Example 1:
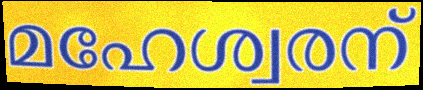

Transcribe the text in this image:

മഹേശ്വരന്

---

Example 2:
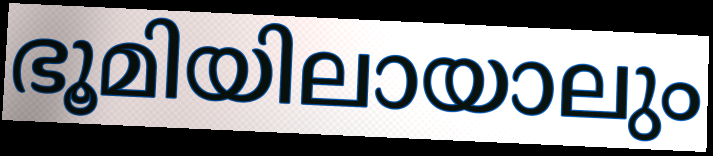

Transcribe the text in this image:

ഭൂമിയിലായാലും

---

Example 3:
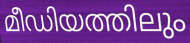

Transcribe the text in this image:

മീഡിയത്തിലും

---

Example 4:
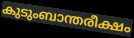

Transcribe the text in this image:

കുടുംബാന്തരീക്ഷം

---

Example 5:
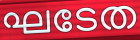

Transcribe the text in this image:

ഘടേത